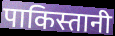
पाकिस्तानी